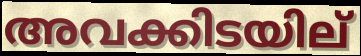
അവക്കിടയില്